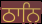
ਠਾਨਿ